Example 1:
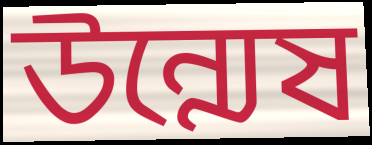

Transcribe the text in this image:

উন্মেষ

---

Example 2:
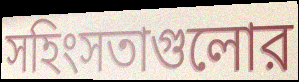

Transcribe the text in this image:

সহিংসতাগুলোর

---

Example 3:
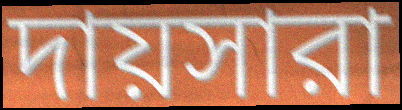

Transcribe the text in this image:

দায়সারা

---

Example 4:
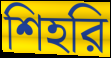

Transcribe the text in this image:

শিহরি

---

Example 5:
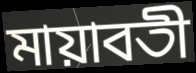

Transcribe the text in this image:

মায়াবতী